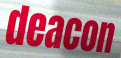
deacon